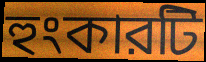
হুংকারটি